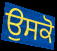
ਉਸਕੋ